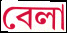
বেলা